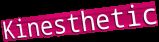
Kinesthetic